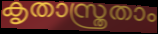
കൃതാസ്ത്രതാം